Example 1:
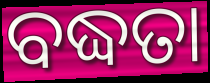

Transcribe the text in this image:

ବଦ୍ଧତା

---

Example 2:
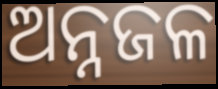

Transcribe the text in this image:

ଅନ୍ନଜଳ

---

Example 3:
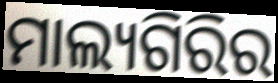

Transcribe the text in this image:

ମାଲ୍ୟଗିରିର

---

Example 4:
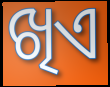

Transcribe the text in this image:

ଖିଏ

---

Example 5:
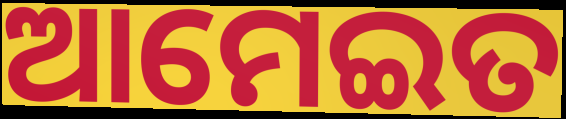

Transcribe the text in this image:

ଆମେଇତ